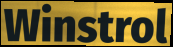
Winstrol